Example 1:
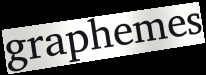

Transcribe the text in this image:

graphemes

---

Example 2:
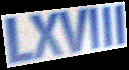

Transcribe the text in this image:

LXVIII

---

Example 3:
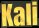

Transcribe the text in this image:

Kali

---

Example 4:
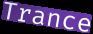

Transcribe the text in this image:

Trance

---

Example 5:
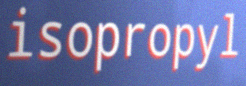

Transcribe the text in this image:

isopropyl